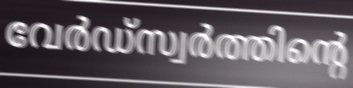
വേർഡ്സ്വർത്തിന്റെ